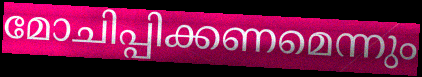
മോചിപ്പിക്കണമെന്നും